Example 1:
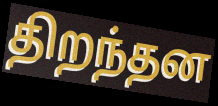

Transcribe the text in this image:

திறந்தன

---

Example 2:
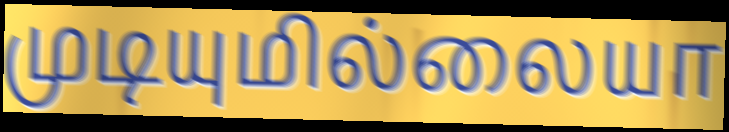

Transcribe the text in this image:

முடியுமில்லையா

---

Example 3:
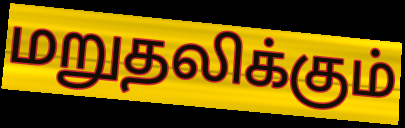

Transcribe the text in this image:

மறுதலிக்கும்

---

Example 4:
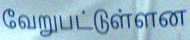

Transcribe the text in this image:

வேறுபட்டுள்ளன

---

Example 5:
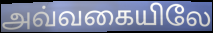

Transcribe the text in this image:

அவ்வகையிலே